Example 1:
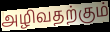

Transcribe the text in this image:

அழிவதற்கும்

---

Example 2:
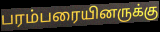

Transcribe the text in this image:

பரம்பரையினருக்கு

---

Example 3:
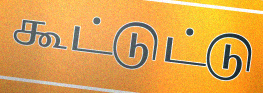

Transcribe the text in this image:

கூட்டுட்டு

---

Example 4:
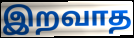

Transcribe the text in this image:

இறவாத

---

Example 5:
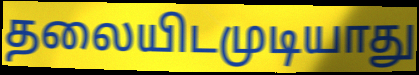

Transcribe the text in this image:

தலையிடமுடியாது